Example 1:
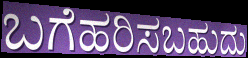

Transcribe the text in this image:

ಬಗೆಹರಿಸಬಹುದು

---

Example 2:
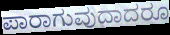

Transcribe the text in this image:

ಪಾರಾಗುವುದಾದರೂ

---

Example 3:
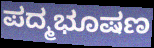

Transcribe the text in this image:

ಪದ್ಮಭೂಷಣ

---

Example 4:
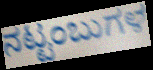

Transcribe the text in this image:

ನಟ್ಟಂಬುಗಳ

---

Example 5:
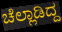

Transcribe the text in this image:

ಚೆಲ್ಲಾಡಿದ್ದ